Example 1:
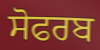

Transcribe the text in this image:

ਸੋਫਰਬ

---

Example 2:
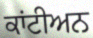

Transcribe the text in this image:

ਕਾਂਟੀਅਨ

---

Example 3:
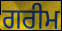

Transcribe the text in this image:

ਗਰੀਮ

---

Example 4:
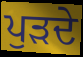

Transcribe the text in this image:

ਪੁੜਦੇ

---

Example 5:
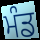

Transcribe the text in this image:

ਮੰਡ